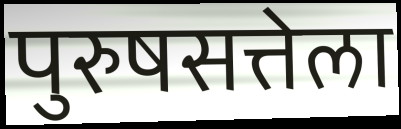
पुरुषसत्तेला